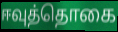
ஈவுத்தொகை